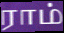
ராம்